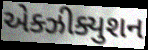
એક્ઝીક્યુશન